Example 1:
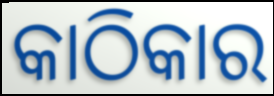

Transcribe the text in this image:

କାଠିକାର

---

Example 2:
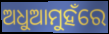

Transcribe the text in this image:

ଅଧୁଆମୁହଁରେ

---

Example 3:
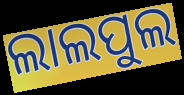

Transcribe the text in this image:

ଲାଲପୁଲ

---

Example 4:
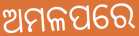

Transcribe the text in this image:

ଅମଳପରେ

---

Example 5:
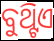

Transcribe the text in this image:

ବୁଥ୍ଟିଏ